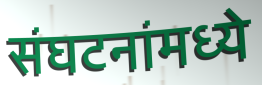
संघटनांमध्ये